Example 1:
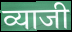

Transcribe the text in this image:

व्याजी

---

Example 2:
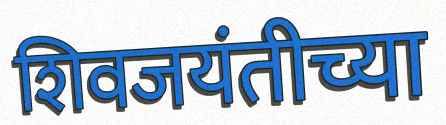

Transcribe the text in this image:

शिवजयंतीच्या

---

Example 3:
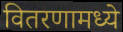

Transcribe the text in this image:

वितरणामध्ये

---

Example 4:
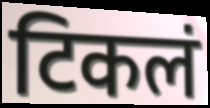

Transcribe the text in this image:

टिकलं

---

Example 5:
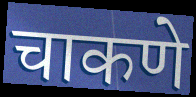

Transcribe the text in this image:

चाकणे